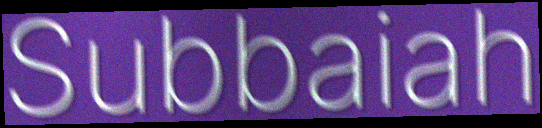
Subbaiah